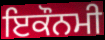
ਇਕੌਨਮੀ